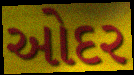
ઓદર